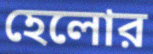
হেলোর